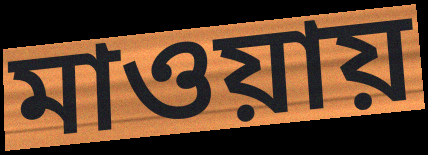
মাওয়ায়